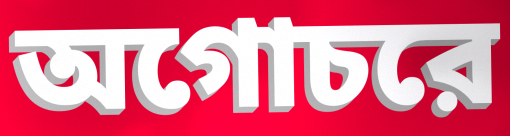
অগোচরে